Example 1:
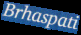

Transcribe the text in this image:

Brhaspati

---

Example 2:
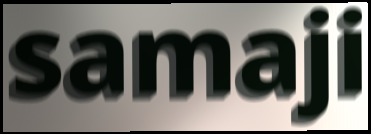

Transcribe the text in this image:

samaji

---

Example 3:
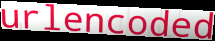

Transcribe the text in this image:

urlencoded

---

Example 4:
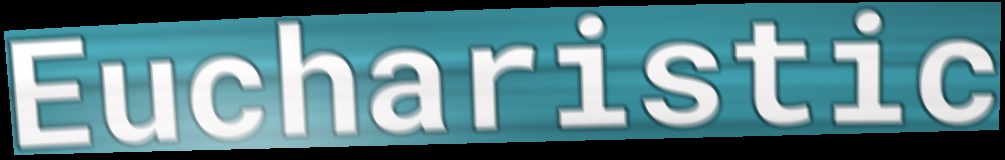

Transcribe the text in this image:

Eucharistic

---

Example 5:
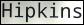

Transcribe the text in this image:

Hipkins